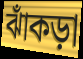
ঝাঁকড়া